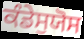
ਕੰਡੇਸੁਯੋਸ